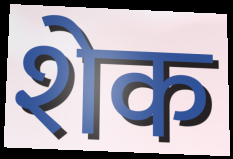
शेक